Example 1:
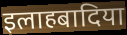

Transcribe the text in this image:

इलाहबादिया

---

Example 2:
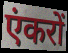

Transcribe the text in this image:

एंकरों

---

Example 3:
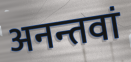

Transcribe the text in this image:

अनन्तवां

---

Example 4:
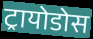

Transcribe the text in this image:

ट्रायोडोस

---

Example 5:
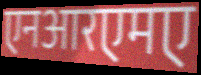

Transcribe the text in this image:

एनआरएमए